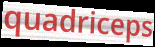
quadriceps